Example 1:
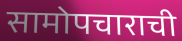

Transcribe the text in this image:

सामोपचाराची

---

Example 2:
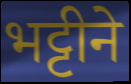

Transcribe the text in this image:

भट्टीने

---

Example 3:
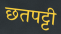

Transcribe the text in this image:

छतपट्टी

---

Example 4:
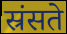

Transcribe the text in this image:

स्रंसते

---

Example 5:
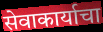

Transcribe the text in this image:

सेवाकार्याचा